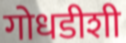
गोधडीशी